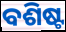
ବଶିଷ୍ଟ